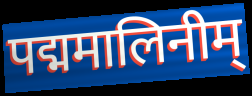
पद्ममालिनीम्